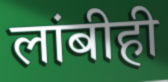
लांबीही